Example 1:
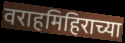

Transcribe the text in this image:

वराहमिहिराच्या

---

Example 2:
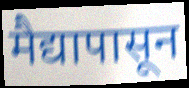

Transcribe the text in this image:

मैद्यापासून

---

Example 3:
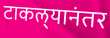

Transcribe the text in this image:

टाकल्यानंतर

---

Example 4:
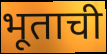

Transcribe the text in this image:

भूताची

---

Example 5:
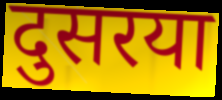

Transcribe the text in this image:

दुसरया